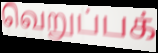
வெறுப்பக்